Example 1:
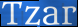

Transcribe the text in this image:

Tzar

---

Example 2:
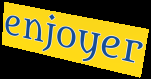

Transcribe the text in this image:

enjoyer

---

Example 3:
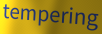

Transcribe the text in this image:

tempering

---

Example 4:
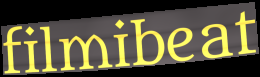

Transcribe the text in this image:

filmibeat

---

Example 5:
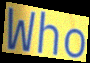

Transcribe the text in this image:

Who